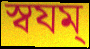
স্বযম্